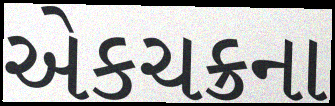
એકચક્રના